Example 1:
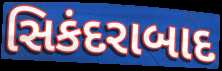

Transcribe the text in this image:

સિકંદરાબાદ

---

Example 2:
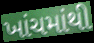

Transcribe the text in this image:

ખાંચમાંથી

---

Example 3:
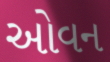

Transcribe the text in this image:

ઓવન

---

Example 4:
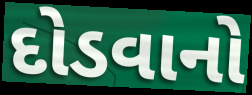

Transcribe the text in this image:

દોડવાનો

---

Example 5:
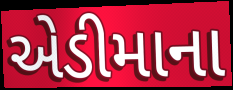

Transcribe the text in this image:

એડીમાના